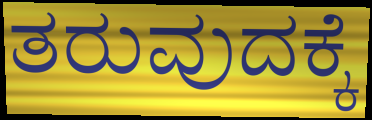
ತರುವುದಕ್ಕೆ